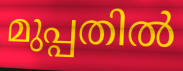
മുപ്പതിൽ